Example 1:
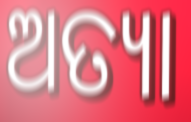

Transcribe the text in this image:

ଅତ୍ୟା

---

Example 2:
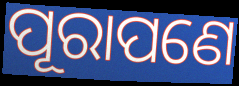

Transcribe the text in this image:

ପୂରାପଣେ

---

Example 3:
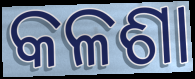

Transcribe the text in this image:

କଳଶା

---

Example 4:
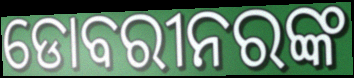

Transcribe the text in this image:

ଡୋବରୀନରଙ୍କ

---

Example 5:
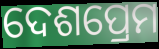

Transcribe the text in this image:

ଦେଶପ୍ରେମ